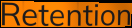
Retention